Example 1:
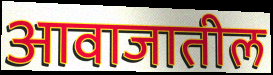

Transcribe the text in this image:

आवाजातील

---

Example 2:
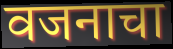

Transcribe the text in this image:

वजनाचा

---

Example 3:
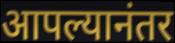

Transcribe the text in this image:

आपल्यानंतर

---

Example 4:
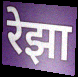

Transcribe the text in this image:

रेझा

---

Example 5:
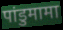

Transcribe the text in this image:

पांडुमामा